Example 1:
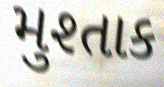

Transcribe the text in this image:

મુશ્તાક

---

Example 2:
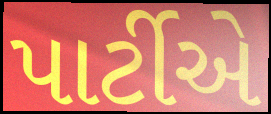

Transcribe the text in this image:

પાર્ટીએ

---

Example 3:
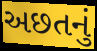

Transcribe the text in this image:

અછતનું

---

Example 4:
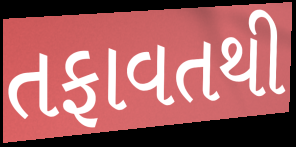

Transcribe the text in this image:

તફાવતથી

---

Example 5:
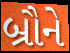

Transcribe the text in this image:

બ્રૌને